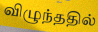
விழுந்ததில்